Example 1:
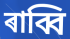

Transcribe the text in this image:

ৰাব্বি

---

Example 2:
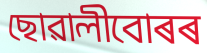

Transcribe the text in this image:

ছোৱালীবোৰৰ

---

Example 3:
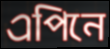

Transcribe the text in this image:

এপিনে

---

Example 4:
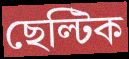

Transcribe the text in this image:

ছেল্টিক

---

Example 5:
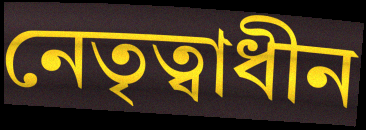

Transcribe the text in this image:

নেতৃত্বাধীন